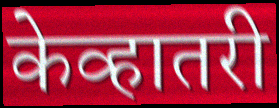
केव्हातरी